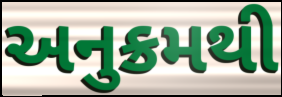
અનુક્રમથી